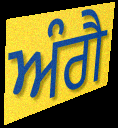
ਅੰਗੈ